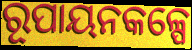
ରୂପାୟନକଳ୍ପେ